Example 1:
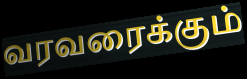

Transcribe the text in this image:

வரவரைக்கும்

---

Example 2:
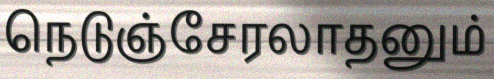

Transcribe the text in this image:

நெடுஞ்சேரலாதனும்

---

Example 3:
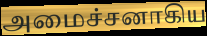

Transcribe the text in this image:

அமைச்சனாகிய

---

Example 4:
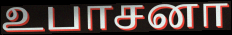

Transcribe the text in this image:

உபாசனா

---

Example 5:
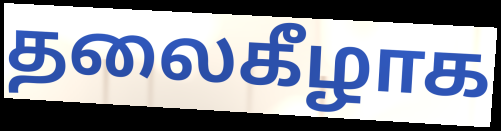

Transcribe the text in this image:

தலைகீழாக